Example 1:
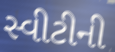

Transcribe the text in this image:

સ્વીટીની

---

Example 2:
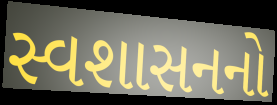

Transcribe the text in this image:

સ્વશાસનનો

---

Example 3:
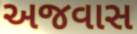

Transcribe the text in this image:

અજવાસ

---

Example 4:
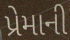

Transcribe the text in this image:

પ્રેમાની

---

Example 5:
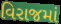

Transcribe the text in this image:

વિરાજમાં